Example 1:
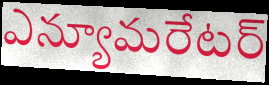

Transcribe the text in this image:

ఎన్యూమరేటర్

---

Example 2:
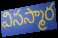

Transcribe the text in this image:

విసస్మార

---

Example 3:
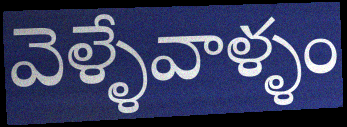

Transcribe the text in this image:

వెళ్ళేవాళ్ళం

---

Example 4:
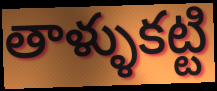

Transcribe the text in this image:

తాళ్ళుకట్టి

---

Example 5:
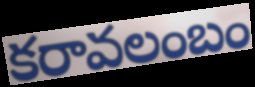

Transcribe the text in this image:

కరావలంబం